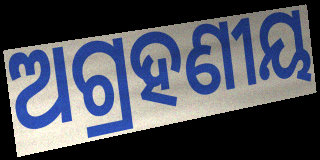
ଅଗ୍ରହଣୀୟ